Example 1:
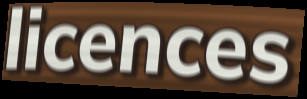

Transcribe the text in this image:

licences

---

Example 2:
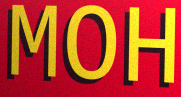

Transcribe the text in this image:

MOH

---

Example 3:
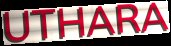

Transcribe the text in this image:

UTHARA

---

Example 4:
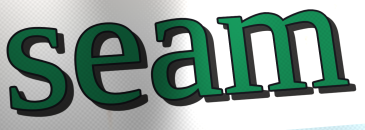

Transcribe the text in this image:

seam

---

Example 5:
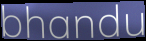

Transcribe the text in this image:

bhandu